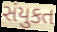
સંયુકત